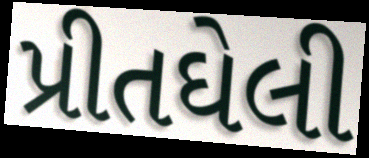
પ્રીતઘેલી